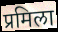
प्रमिला